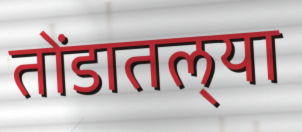
तोंडातल्या